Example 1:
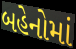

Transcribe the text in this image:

બહેનોમાં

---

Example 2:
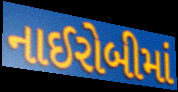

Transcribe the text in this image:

નાઈરોબીમાં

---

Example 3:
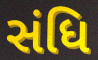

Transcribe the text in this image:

સંધિ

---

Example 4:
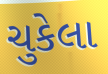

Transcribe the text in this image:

ચુકેલા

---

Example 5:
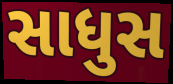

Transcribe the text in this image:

સાધુસ